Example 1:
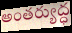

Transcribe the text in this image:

అంతర్యుద్ధ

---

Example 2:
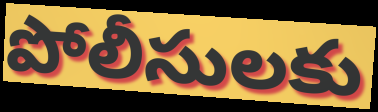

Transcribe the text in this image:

పోలీసులకు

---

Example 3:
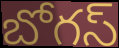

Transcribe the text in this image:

బోగస్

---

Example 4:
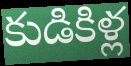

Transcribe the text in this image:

కుడికిళ్ల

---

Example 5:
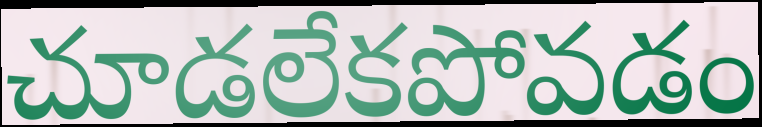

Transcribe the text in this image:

చూడలేకపోవడం